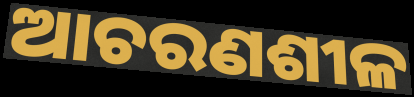
ଆଚରଣଶୀଳ